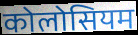
कोलोसियम